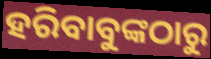
ହରିବାବୁଙ୍କଠାରୁ